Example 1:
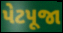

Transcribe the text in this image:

પેટપૂજા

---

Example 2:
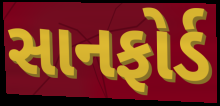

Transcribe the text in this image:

સાનફોર્ડ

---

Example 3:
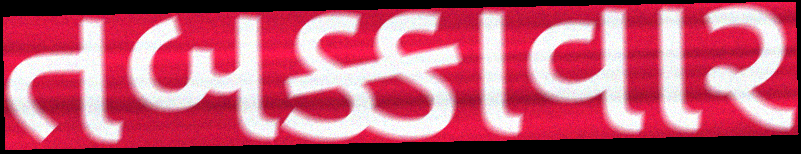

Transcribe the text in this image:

તબક્કાવાર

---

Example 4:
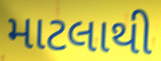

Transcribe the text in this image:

માટલાથી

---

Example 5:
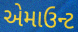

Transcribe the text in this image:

એમાઉન્ટ